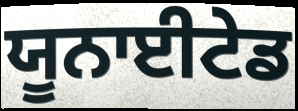
ਯੂਨਾਈਟੇਡ